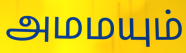
அமமயும்